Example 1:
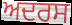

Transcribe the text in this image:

ਅਦਰਸ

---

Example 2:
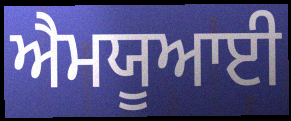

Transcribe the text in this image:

ਐਮਯੂਆਈ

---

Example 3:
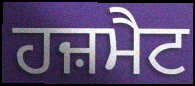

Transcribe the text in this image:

ਹਜ਼ਮੈਟ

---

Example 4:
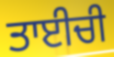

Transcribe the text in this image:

ਤਾਈਚੀ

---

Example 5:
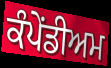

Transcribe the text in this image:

ਕੰਪੇਂਡੀਅਮ